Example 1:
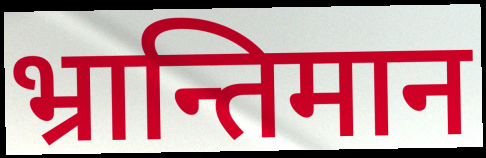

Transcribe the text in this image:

भ्रान्तिमान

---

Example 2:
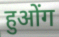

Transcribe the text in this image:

हुओंग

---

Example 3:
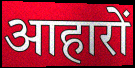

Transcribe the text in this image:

आहारों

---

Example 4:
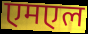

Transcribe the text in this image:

एमएल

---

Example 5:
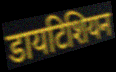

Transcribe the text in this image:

डायटिशियन